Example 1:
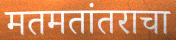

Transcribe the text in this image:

मतमतांतराचा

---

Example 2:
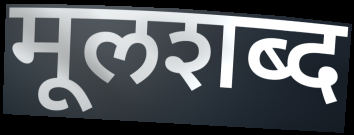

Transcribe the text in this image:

मूलशब्द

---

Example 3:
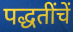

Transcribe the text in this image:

पद्धतींचें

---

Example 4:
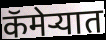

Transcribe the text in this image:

कॅमेर्‍यात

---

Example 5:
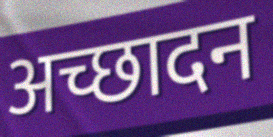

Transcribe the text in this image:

अच्छादन